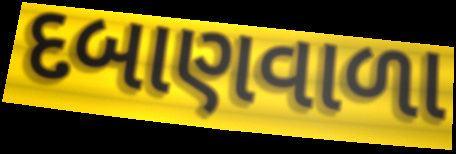
દબાણવાળા